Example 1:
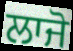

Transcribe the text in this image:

ਲਾਜੋ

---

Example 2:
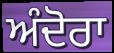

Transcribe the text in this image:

ਅੰਦੋਰਾ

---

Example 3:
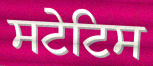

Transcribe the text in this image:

ਸਟੇਟਿਸ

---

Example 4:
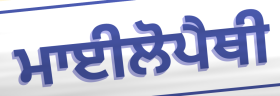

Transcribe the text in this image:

ਮਾਈਲੋਪੈਥੀ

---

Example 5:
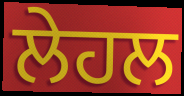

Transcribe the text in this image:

ਲੇਹਲ